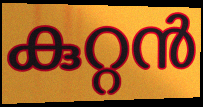
കുറ്റൻ